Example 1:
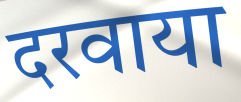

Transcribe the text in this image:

दरवाया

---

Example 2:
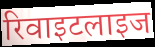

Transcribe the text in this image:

रिवाइटलाइज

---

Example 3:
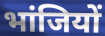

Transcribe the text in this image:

भांजियों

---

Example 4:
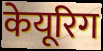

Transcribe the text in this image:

केयूरिग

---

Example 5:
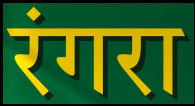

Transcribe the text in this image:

रंगरा